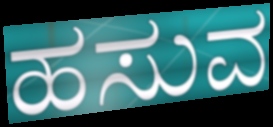
ಹಸುವ